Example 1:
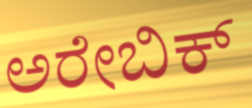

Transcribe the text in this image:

ಅರೇಬಿಕ್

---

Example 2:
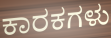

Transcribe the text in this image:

ಕಾರಕಗಳು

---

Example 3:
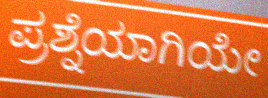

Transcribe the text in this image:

ಪ್ರಶ್ನೆಯಾಗಿಯೇ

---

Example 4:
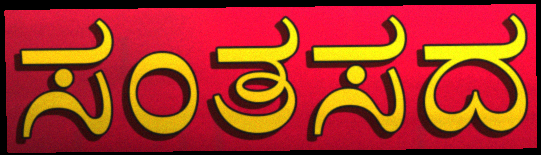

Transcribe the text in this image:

ಸಂತಸದ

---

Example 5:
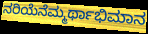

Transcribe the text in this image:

ನರಿಯೆನೆಮ್ಮರ್ಥಾಭಿಮಾನ